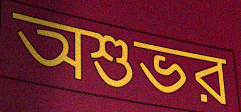
অশুভর